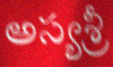
అస్యశ్రీ